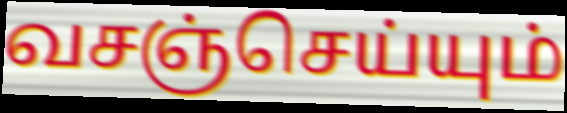
வசஞ்செய்யும்